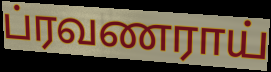
ப்ரவணராய்